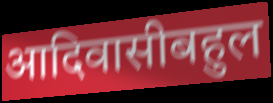
आदिवासीबहुल